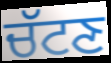
ਚੱਟਣ